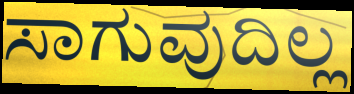
ಸಾಗುವುದಿಲ್ಲ